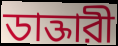
ডাক্তারী